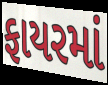
ફાયરમાં